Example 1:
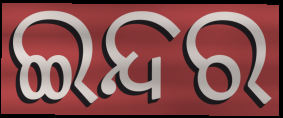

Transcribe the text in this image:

ଇନ୍ଦର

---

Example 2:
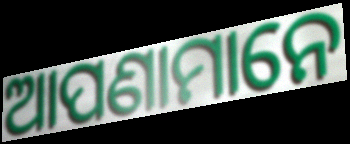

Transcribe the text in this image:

ଆପଣାମାନେ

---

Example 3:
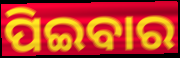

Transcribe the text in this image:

ପିଇବାର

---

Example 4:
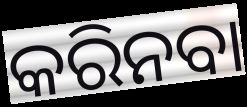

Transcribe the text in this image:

କରିନବା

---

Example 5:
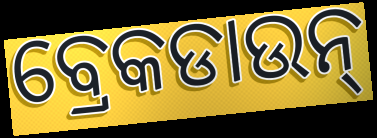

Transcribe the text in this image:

ବ୍ରେକଡାଉନ୍